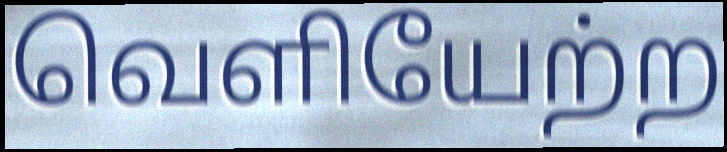
வெளியேற்ற